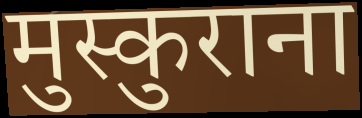
मुस्कुराना